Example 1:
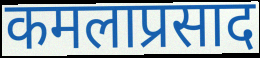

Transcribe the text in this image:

कमलाप्रसाद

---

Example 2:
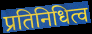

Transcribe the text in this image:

प्रतिनिधित्व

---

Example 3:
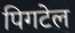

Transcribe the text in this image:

पिगटेल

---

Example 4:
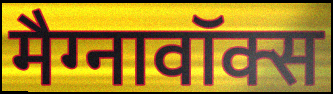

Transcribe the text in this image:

मैग्नावॉक्स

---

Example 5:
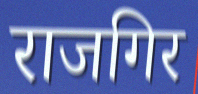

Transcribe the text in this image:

राजगिर